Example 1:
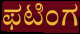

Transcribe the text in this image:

ಫಟಿಂಗ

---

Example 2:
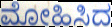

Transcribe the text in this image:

ಮೋಹಿಸಿದ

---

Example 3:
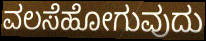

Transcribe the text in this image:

ವಲಸೆಹೋಗುವುದು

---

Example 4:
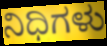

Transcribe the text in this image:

ನಿಧಿಗಳು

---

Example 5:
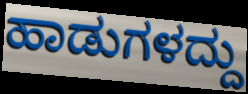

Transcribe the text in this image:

ಹಾಡುಗಳದ್ದು